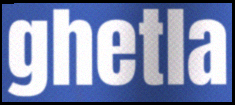
ghetla